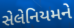
સેલેનિયમને